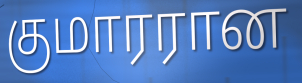
குமாரரான